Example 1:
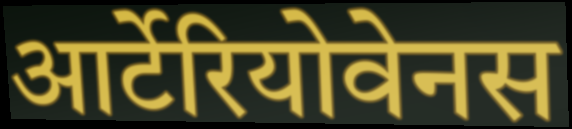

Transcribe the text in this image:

आर्टेरियोवेनस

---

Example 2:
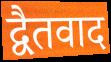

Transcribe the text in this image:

द्वैतवाद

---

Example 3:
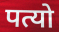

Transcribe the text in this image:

पत्यो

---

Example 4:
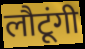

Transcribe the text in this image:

लौटूंगी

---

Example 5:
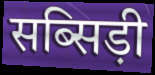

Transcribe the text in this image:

सब्सिड़ी